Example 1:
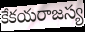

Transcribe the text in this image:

కేకయరాజస్య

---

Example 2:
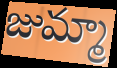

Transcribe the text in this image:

జుమ్మా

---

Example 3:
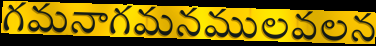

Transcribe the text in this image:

గమనాగమనములవలన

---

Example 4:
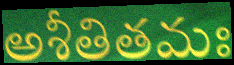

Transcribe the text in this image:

అశీతితమః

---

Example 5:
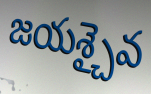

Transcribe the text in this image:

జయశ్చైవ